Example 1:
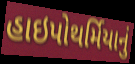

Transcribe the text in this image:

હાઇપોથર્મિયાનું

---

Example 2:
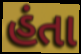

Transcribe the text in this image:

હંતા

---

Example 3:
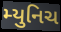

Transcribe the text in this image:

મ્યુનિચ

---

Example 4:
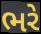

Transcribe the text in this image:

ભરે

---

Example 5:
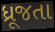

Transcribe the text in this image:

ધ્રૂજતા